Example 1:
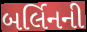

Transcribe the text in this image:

બર્લિનની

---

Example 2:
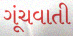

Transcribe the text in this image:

ગૂંચવાતી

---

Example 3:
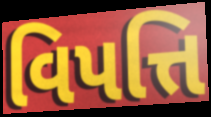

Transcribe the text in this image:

વિપત્તિ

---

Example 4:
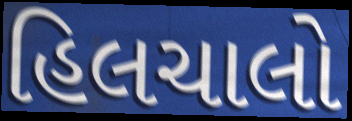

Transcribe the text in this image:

હિલચાલો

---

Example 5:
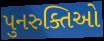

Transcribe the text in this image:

પુનરુક્તિઓ